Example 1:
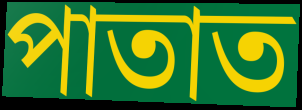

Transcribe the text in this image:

পাতাত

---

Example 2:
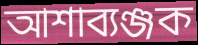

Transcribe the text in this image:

আশাব্যঞ্জক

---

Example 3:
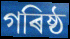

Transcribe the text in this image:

গৰিষ্ঠ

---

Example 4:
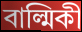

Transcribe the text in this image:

বাল্মিকী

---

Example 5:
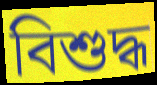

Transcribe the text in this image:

বিশুদ্ধ